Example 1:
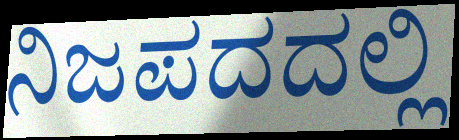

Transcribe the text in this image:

ನಿಜಪದದಲ್ಲಿ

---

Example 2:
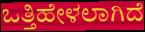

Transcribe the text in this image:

ಒತ್ತಿಹೇಳಲಾಗಿದೆ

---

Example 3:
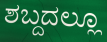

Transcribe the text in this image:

ಶಬ್ದದಲ್ಲೂ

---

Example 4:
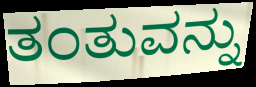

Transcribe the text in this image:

ತಂತುವನ್ನು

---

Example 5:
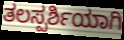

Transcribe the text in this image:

ತಲಸ್ಪರ್ಶಿಯಾಗಿ